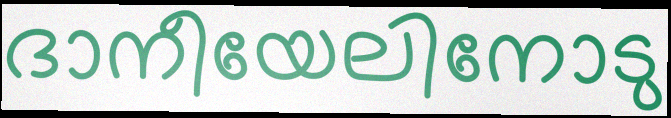
ദാനീയേലിനോടു